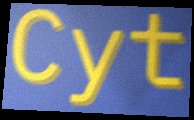
Cyt